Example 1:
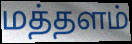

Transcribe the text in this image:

மத்தளம்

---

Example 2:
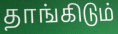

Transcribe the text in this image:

தாங்கிடும்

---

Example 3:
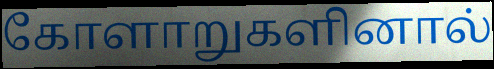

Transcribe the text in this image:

கோளாறுகளினால்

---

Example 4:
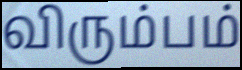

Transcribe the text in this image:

விரும்பம்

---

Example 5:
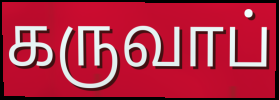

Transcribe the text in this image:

கருவாப்